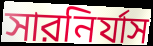
সারনির্যাস